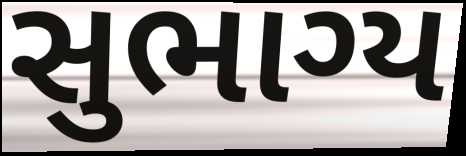
સુભાગ્ય